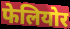
फेलियोर